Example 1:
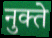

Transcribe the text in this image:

नुक्ते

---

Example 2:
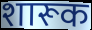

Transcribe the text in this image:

शारूक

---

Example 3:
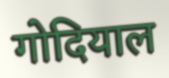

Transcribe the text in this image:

गोदियाल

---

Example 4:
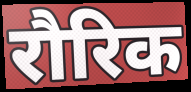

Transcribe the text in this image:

रौरिक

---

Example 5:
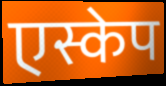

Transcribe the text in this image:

एस्केप